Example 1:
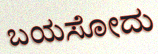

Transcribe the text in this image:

ಬಯಸೋದು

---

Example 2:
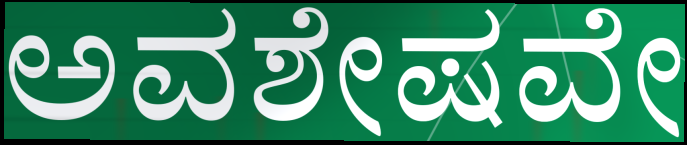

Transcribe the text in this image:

ಅವಶೇಷವೇ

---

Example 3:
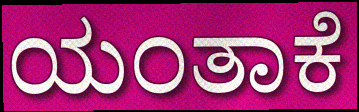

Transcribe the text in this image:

ಯಂತಾಕೆ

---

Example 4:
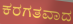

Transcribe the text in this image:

ಕರಗತವಾದ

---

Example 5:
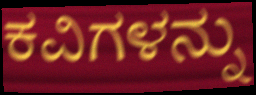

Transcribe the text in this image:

ಕವಿಗಳನ್ನು